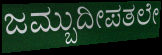
ಜಮ್ಬುದೀಪತಲೇ